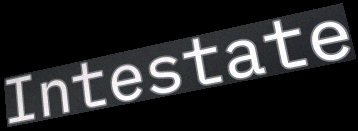
Intestate